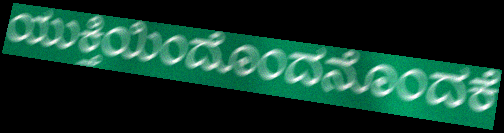
ಯುಕ್ತಿಯಿಂದೊಂದನೊಂದಕೆ